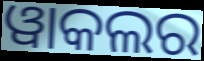
ୱାକଲର